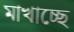
মাখাচ্ছে